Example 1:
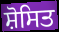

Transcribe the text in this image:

ਸ਼ੋਸਿਤ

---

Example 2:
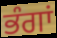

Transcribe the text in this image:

ਭੰਗਾਂ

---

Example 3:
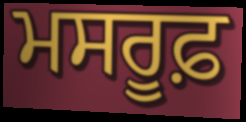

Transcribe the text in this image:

ਮਸਰੂਫ਼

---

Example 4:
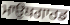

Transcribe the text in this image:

ਮਾਉਥਗਾਰਡ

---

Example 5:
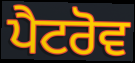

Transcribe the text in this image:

ਪੈਟਰੋਵ